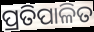
ପ୍ରତିପାଳିତ